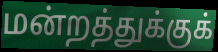
மன்றத்துக்குக்